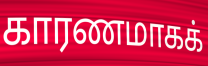
காரணமாகக்